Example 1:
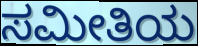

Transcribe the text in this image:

ಸಮೀತಿಯ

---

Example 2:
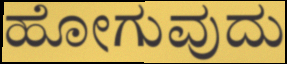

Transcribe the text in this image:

ಹೋಗುವುದು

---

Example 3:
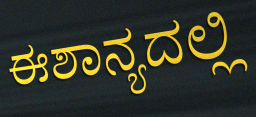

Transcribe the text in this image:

ಈಶಾನ್ಯದಲ್ಲಿ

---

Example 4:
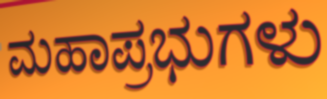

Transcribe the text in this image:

ಮಹಾಪ್ರಭುಗಳು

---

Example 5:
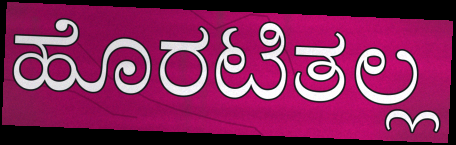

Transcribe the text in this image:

ಹೊರಟಿತಲ್ಲ